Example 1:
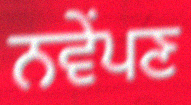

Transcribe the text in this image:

ਨਵੇਂਪਣ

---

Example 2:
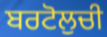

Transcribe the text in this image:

ਬਰਟੋਲੁਚੀ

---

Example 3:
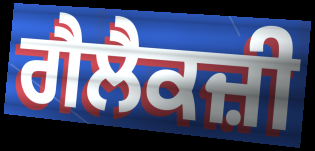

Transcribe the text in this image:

ਗੈਲੈਕਜ਼ੀ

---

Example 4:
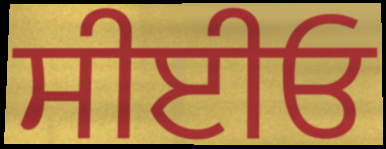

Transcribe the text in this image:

ਸੀਈਓ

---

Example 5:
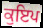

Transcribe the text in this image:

ਕੁਇਪ